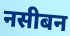
नसीबन